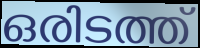
ഒരിടത്ത്